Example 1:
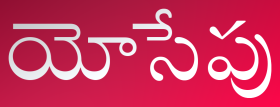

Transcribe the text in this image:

యోసేపు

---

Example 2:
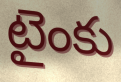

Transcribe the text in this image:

టైంకు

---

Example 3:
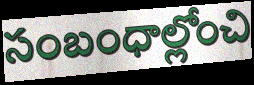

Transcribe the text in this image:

సంబంధాల్లోంచి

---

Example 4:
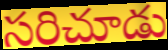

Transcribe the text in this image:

సరిచూడు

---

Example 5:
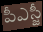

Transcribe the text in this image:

పీఎస్జీ